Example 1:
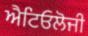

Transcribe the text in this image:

ਐਟਿਓਲੋਜੀ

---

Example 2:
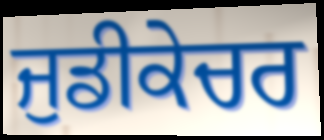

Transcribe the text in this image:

ਜੁਡੀਕੇਚਰ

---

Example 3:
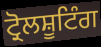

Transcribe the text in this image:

ਟ੍ਰੋਲਸ਼ੂਟਿੰਗ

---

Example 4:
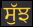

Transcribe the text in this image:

ਸੁੱਝ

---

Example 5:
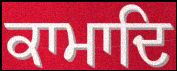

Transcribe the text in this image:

ਕਾਮਾਦਿ